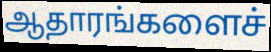
ஆதாரங்களைச்